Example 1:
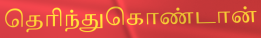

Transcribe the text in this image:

தெரிந்துகொண்டான்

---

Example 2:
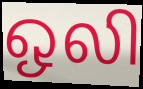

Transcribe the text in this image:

ஒலி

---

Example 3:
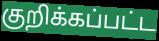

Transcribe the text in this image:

குறிக்கப்பட்ட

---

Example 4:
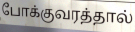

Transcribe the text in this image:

போக்குவரத்தால்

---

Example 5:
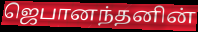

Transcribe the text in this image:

ஜெபானந்தனின்